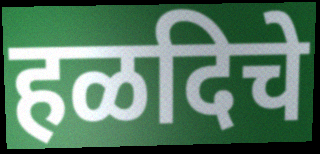
हळदिचे